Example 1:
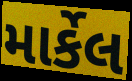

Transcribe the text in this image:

માર્કેલ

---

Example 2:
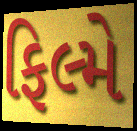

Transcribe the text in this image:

ફિલ્મે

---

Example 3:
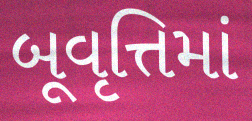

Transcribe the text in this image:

બૂવૃત્તિમાં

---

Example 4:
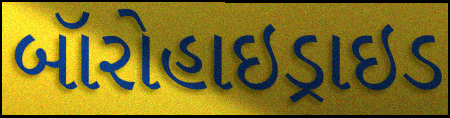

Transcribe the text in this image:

બૉરોહાઇડ્રાઇડ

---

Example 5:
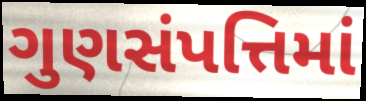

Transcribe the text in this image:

ગુણસંપત્તિમાં